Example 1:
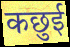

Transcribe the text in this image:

कछुई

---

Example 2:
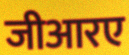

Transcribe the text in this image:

जीआरए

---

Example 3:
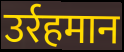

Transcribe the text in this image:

उर्रहमान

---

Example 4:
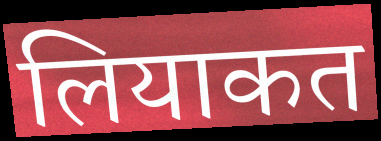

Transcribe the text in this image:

लियाकत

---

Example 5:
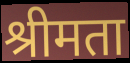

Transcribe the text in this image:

श्रीमता